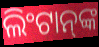
ଲିଂଟାନ୍‍ଙ୍କ